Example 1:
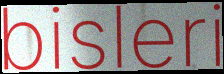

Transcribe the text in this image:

bisleri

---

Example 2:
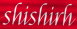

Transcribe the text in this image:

shishirh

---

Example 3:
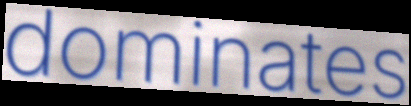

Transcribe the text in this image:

dominates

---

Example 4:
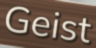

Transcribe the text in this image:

Geist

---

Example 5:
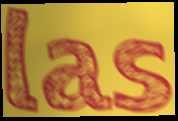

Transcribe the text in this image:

las